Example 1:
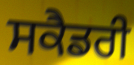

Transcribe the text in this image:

ਸਕੈਡਰੀ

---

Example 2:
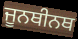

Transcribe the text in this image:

ਜੂਨਥੀਨਥ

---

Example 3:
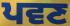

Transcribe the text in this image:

ਪਵਣ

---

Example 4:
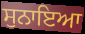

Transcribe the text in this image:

ਸੁਨਾਇਆ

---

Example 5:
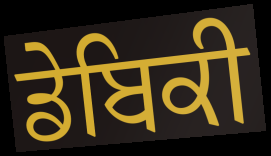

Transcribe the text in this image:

ਡੇਬਿਕੀ